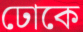
ঢোকে